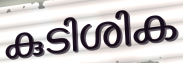
കുടിശിക